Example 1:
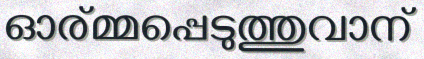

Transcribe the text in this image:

ഓര്മ്മപ്പെടുത്തുവാന്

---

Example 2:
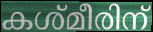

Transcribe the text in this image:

കശ്മീരിന്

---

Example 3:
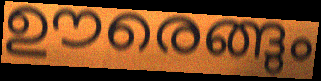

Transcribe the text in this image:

ഊരെങ്ങും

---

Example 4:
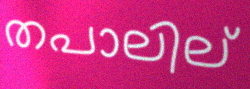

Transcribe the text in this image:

തപാലില്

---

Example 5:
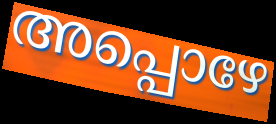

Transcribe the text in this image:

അപ്പൊഴേ